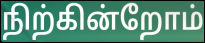
நிற்கின்றோம்